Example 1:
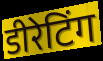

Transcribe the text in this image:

डीरेटिंग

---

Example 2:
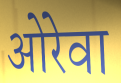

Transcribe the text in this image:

ओरेवा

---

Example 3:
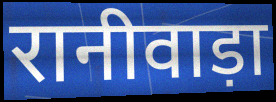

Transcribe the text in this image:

रानीवाड़ा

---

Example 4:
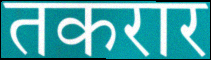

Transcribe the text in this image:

तकरार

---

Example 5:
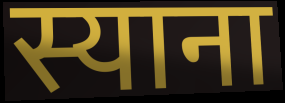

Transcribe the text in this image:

स्याना